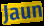
Jaun